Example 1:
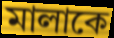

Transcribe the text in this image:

মালাকে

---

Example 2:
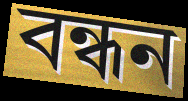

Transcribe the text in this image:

বন্ধন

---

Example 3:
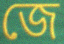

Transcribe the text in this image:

জে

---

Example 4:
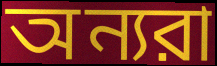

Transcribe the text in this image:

অন্যরা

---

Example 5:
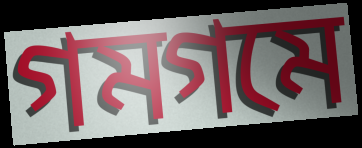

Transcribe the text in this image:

গমগমে